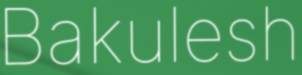
Bakulesh